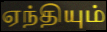
ஏந்தியும்